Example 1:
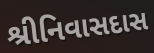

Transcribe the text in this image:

શ્રીનિવાસદાસ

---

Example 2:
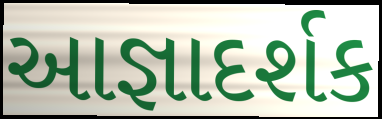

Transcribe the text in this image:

આજ્ઞાદર્શક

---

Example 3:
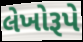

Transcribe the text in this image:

લેખોરૂપે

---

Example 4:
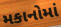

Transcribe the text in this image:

મકાનોમાં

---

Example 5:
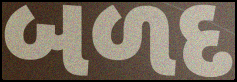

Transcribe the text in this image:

બળદ